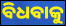
ବିଧବାକୁ